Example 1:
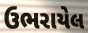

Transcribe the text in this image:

ઉભરાયેલ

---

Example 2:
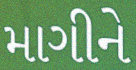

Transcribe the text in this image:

માગીને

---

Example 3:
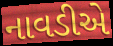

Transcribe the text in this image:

નાવડીએ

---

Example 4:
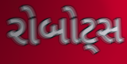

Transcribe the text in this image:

રોબોટ્સ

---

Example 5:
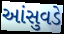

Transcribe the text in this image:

આંસુવડે